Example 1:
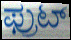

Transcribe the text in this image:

ಫ್ರುಟ್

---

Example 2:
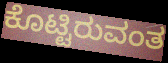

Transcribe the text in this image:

ಕೊಟ್ಟಿರುವಂತ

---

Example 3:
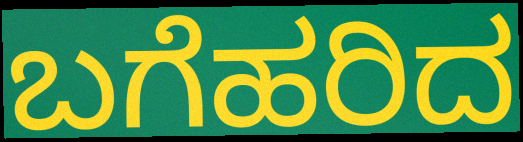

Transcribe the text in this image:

ಬಗೆಹರಿದ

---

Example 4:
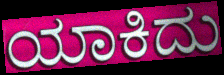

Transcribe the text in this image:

ಯಾಕಿದು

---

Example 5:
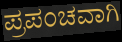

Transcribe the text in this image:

ಪ್ರಪಂಚವಾಗಿ